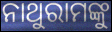
ନାଥୁରାମଙ୍କୁ